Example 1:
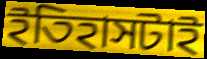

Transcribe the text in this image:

ইতিহাসটাই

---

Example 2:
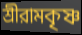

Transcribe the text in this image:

শ্রীরামকৃষ্ণ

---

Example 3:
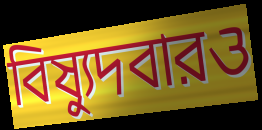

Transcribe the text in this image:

বিষ্যুদবারও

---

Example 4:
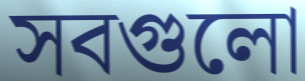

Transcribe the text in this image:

সবগুলো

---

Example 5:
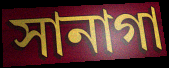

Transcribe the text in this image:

সানাগা